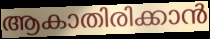
ആകാതിരിക്കാൻ